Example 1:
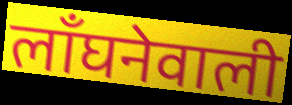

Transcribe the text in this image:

लाँघनेवाली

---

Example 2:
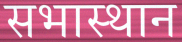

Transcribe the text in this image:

सभास्थान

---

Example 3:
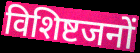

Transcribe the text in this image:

विशिष्टजनों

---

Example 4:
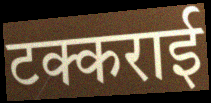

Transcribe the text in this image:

टक्कराई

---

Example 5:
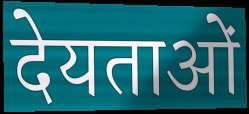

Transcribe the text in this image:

देयताओं